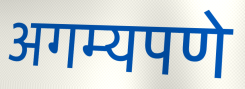
अगम्यपणे